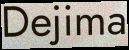
Dejima